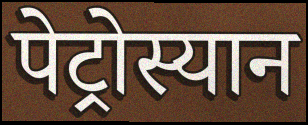
पेट्रोस्यान